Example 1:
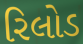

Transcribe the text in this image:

રિલોડ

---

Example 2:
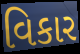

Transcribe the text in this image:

વિકાર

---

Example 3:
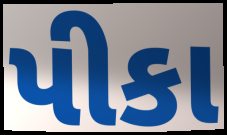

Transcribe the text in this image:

પીકા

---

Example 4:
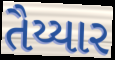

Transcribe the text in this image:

તૈય્યાર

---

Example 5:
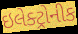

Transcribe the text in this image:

ઇલેક્ટ્રોનીક